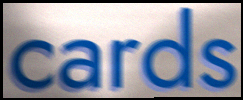
cards